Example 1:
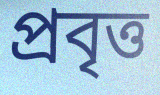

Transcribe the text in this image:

প্রবৃত্ত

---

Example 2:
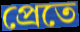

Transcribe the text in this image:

প্রেতে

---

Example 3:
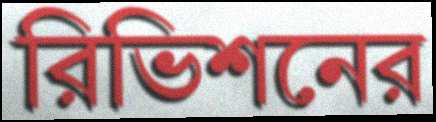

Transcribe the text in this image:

রিভিশনের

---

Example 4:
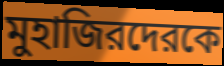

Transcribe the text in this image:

মুহাজিরদেরকে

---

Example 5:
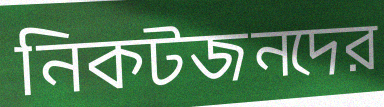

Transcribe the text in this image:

নিকটজনদের